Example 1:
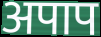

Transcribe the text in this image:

अपाप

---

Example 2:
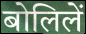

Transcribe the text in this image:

बोलिलें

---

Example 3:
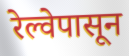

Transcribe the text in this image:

रेल्वेपासून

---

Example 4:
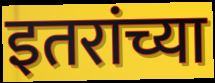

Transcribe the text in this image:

इतरांच्या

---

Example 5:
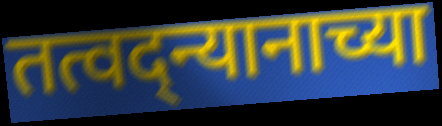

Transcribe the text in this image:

तत्वद्न्यानाच्या